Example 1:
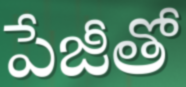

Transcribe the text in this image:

పేజీతో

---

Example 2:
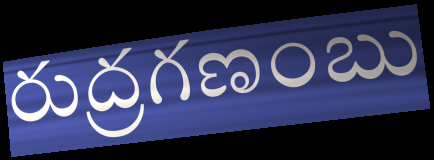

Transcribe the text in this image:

రుద్రగణంబు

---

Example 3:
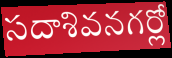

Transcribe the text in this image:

సదాశివనగర్లో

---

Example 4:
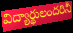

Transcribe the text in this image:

విద్యార్థులందరినీ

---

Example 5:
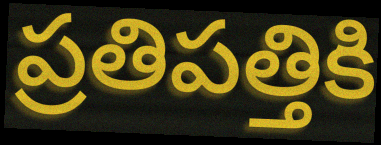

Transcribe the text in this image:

ప్రతిపత్తికి